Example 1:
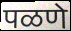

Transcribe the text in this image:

पळणे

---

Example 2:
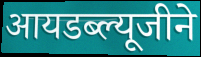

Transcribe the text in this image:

आयडब्ल्यूजीने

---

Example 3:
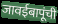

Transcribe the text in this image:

जावईबापूंची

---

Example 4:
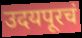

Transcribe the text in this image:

उदयपूरचं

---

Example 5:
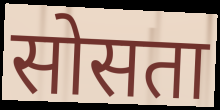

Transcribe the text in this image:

सोसता